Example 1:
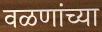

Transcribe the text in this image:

वळणांच्या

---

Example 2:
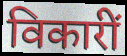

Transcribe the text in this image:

विकारीं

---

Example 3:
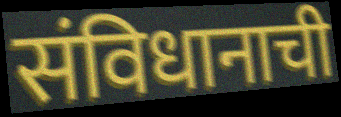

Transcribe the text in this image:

संविधानाची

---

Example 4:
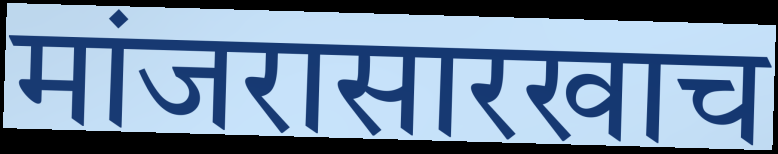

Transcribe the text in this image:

मांजरासारखाच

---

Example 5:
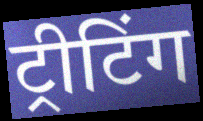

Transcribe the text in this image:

ट्रीटिंग